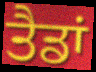
ਤੈਡਾਂ